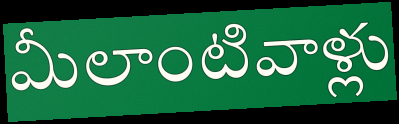
మీలాంటివాళ్లు